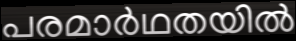
പരമാർഥതയിൽ